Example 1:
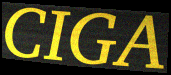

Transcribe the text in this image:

CIGA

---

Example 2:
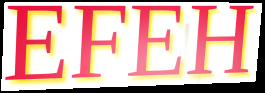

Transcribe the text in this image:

EFEH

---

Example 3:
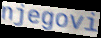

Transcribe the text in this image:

njegovi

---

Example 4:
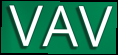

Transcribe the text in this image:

VAV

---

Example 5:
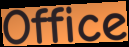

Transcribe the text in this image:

Office